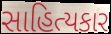
સાહિત્યકાર